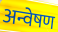
अन्वेषण